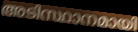
അടിസ്ഥാനമായി